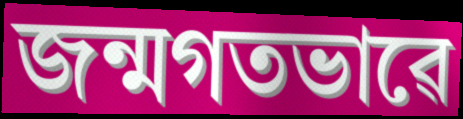
জন্মগতভাৱে